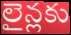
లైన్లకు